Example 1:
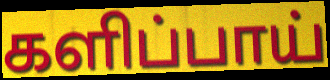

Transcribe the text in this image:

களிப்பாய்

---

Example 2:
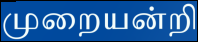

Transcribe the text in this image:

முறையன்றி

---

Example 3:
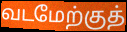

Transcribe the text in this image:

வடமேற்குத்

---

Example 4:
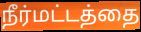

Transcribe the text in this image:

நீர்மட்டத்தை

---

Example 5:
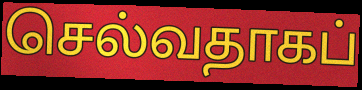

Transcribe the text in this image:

செல்வதாகப்